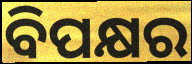
ବିପକ୍ଷର